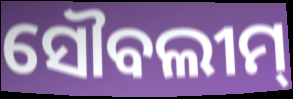
ସୌବଲୀମ୍